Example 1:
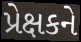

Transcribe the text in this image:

પ્રેક્ષકને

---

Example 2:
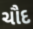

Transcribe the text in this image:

ચૌદ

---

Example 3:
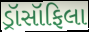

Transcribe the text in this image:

ડ્રૉસૉફિલા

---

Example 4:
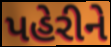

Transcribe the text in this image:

પહેરીને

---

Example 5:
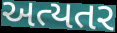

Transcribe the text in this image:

અત્યતર